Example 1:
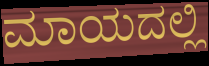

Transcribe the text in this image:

ಮಾಯದಲ್ಲಿ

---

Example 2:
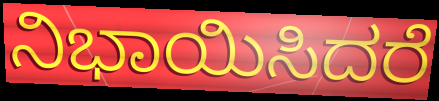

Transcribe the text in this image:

ನಿಭಾಯಿಸಿದರೆ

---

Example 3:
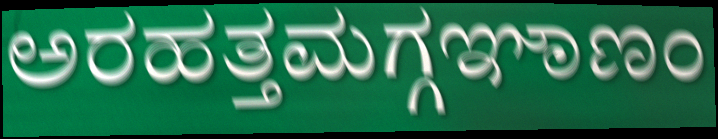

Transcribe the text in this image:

ಅರಹತ್ತಮಗ್ಗಞಾಣಂ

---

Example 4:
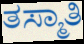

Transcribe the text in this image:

ತಸ್ಮಾತಿ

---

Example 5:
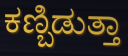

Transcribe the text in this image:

ಕಣ್ಬಿಡುತ್ತಾ